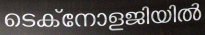
ടെക്‌നോളജിയിൽ